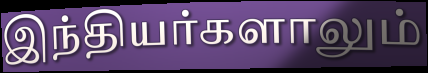
இந்தியர்களாலும்